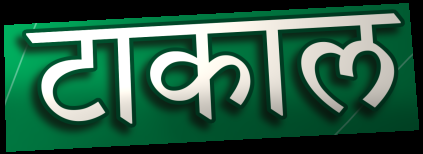
टाकाल